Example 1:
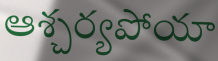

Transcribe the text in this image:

ఆశ్చర్యపోయా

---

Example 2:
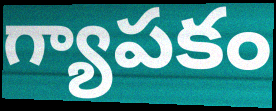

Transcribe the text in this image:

గ్యాపకం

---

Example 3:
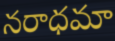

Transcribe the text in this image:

నరాధమా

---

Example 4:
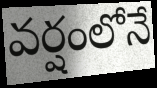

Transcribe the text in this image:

వర్షంలోనే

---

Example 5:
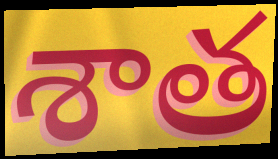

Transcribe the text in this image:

శాత